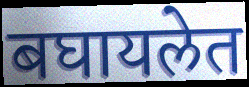
बघायलेत